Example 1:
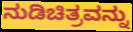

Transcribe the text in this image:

ನುಡಿಚಿತ್ರವನ್ನು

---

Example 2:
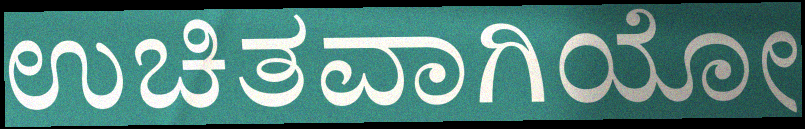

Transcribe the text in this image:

ಉಚಿತವಾಗಿಯೋ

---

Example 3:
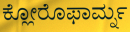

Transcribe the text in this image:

ಕ್ಲೋರೊಫಾರ್ಮ್ನ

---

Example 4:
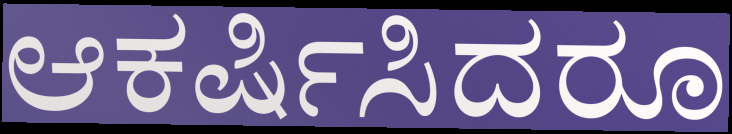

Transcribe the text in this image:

ಆಕರ್ಷಿಸಿದರೂ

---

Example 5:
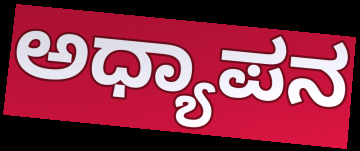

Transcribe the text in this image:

ಅಧ್ಯಾಪನ